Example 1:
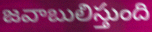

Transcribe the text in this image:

జవాబులిస్తుంది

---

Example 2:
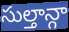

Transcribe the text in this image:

సుల్తాన్గా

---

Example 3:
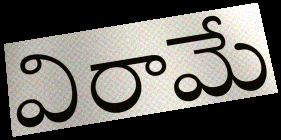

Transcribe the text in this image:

విరామే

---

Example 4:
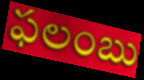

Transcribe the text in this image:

ఫలంబు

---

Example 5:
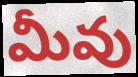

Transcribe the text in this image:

మీవు